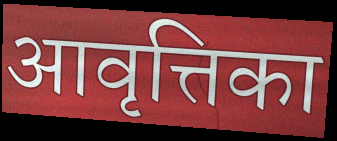
आवृत्तिका